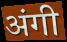
अंगी